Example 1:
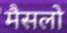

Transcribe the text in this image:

मैसलो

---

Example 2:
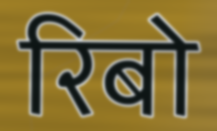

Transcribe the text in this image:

रिबो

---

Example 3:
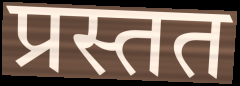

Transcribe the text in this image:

प्रस्तत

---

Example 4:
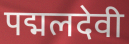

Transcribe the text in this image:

पद्मलदेवी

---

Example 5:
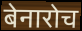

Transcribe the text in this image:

बेनारोच